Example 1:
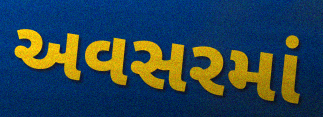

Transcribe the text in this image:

અવસરમાં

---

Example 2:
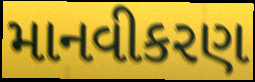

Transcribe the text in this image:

માનવીકરણ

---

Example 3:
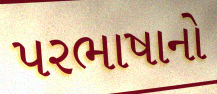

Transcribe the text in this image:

પરભાષાનો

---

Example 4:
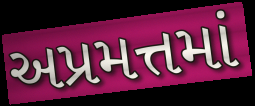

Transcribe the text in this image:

અપ્રમત્તમાં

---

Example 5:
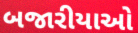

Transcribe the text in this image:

બજારીયાઓ